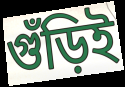
গুঁড়িই